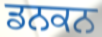
ਡਨਕਨ